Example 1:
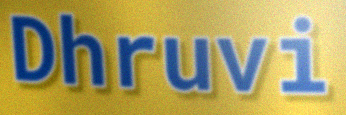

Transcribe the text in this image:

Dhruvi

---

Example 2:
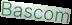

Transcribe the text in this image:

Bascom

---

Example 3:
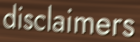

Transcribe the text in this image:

disclaimers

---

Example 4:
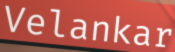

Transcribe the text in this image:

Velankar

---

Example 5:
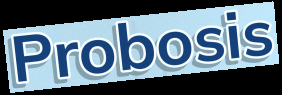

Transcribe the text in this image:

Probosis